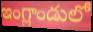
ఇంగ్లాండులో